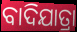
ବାଦିଯାତ୍ରା